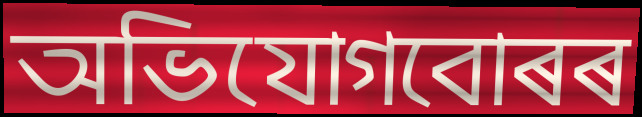
অভিযোগবোৰৰ